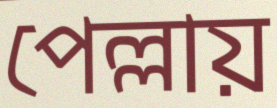
পেল্লায়